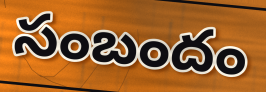
సంబందం